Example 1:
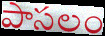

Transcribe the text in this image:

పాసలం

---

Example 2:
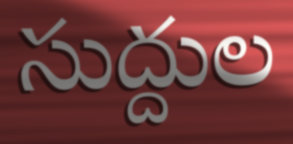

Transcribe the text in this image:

సుద్దుల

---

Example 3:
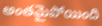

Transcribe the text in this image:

అంతమైపోయింది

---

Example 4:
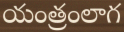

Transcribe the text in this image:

యంత్రంలాగ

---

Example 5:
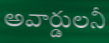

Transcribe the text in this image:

అవార్డులనీ